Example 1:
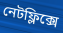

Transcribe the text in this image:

নেটফ্লিক্সে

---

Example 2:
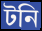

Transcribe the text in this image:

টনি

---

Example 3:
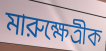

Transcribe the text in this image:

মাৰুক্ষেত্ৰীক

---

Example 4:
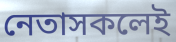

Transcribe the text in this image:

নেতাসকলেই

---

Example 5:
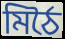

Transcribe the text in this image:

মিঠৈ